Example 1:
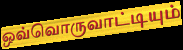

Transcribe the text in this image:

ஒவ்வொருவாட்டியும்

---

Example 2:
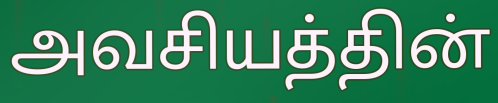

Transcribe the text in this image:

அவசியத்தின்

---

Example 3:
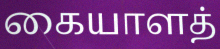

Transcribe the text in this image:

கையாளத்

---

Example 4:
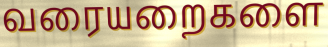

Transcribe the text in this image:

வரையறைகளை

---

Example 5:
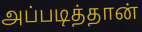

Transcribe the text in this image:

அப்படித்தான்